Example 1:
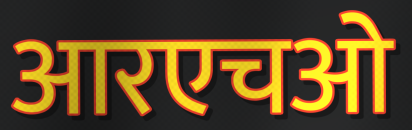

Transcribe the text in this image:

आरएचओ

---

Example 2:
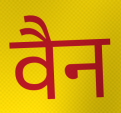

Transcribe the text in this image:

वैन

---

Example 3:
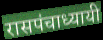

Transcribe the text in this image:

रासपंचाध्यायी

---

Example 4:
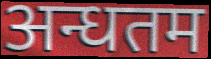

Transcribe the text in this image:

अन्धतम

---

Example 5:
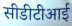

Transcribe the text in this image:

सीडीटीआई